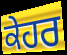
ਕੇਹਰ